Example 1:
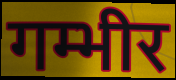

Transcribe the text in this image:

गम्भीर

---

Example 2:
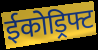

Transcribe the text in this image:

ईकोड्रिफ्ट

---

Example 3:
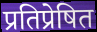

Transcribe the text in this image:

प्रतिप्रेषित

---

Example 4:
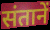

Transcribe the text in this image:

संतानें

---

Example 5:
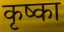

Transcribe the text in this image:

कृष्का